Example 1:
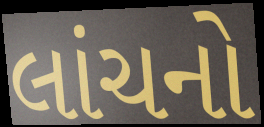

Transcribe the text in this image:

લાંચનો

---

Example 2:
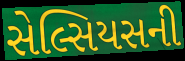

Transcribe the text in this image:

સેલ્સિયસની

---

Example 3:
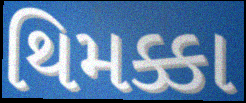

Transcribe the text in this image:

થિમક્કા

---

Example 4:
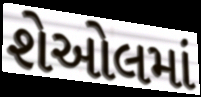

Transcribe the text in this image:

શેઓલમાં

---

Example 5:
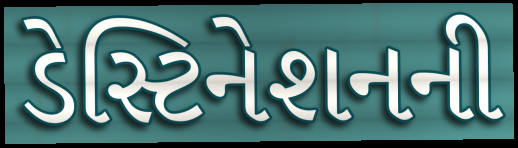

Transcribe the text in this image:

ડેસ્ટિનેશનની